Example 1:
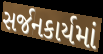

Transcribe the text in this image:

સર્જનકાર્યમાં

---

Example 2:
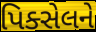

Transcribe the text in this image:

પિક્સેલને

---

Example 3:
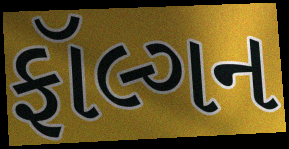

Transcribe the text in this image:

ફૉલ્ગન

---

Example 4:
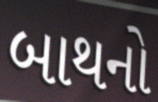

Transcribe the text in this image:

બાથનો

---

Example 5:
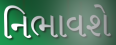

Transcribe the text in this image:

નિભાવશે